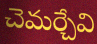
చెమర్చేవి